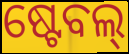
ଷ୍ଟେବଲ୍